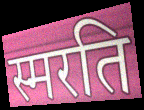
स्मरति